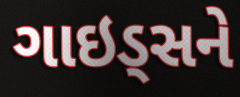
ગાઇડ્સને